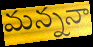
మన్ననా